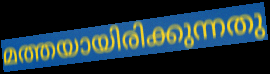
മത്തയായിരിക്കുന്നതു